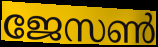
ജേസൺ